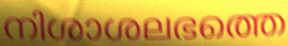
നിശാശലഭത്തെ